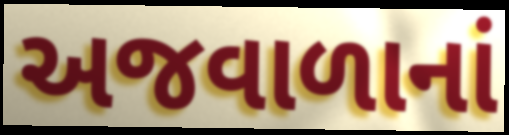
અજવાળાનાં